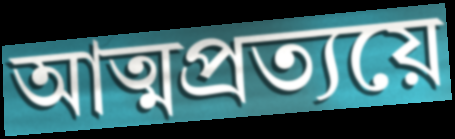
আত্মপ্রত্যয়ে